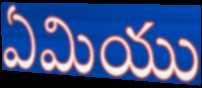
ఏమియు